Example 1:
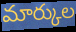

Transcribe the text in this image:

మార్కుల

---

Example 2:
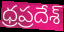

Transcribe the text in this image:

ధ్రప్రదేశ్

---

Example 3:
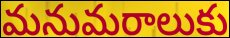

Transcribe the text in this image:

మనుమరాలుకు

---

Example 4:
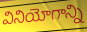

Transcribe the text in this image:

వినియోగాన్ని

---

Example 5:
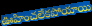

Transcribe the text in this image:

ఊహించలేకపోయాయి